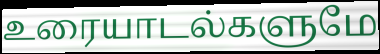
உரையாடல்களுமே